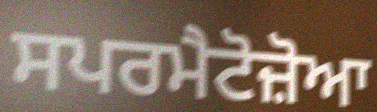
ਸਪਰਮੈਟੋਜ਼ੋਆ